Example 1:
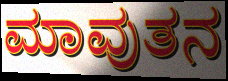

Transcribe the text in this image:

ಮಾವುತನ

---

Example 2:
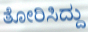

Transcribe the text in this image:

ತೋರಿಸಿದ್ದು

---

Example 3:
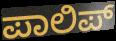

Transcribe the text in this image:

ಪಾಲಿಪ್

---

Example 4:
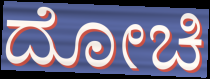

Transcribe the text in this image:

ದೋಚಿ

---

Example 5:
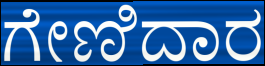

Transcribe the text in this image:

ಗೇಣಿದಾರ